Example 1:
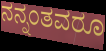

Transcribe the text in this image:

ನನ್ನಂತವರೂ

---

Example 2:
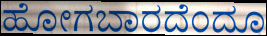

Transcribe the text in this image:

ಹೋಗಬಾರದೆಂದೂ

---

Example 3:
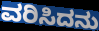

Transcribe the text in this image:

ವರಿಸಿದನು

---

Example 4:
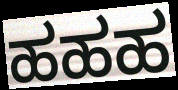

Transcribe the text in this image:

ಹಹಹ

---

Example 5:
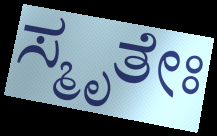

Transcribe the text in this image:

ಸ್ಮೃತೇಃ